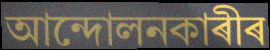
আন্দোলনকাৰীৰ